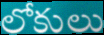
లోకులు